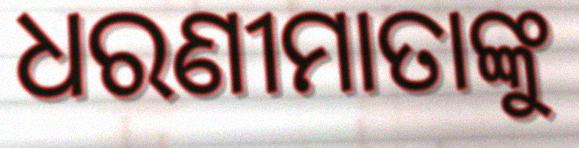
ଧରଣୀମାତାଙ୍କୁ